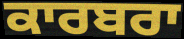
ਕਾਰਬਰਾ